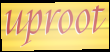
uproot